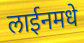
लाईनमधे